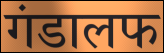
गंडालफ